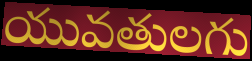
యువతులగు